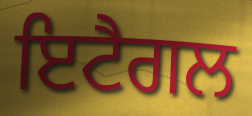
ਇਟੈਗਲ